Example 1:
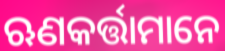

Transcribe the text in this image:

ଋଣକର୍ତ୍ତାମାନେ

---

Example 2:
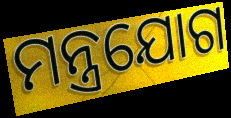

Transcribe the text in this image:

ମନ୍ତ୍ରଯୋଗ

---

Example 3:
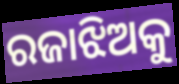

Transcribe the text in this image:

ରଜାଝିଅକୁ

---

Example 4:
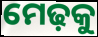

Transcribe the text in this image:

ମେଢ଼କୁ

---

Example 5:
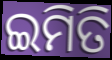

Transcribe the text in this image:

ଇମିତି